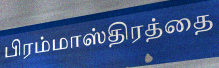
பிரம்மாஸ்திரத்தை